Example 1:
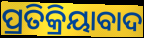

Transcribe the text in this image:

ପ୍ରତିକ୍ରିୟାବାଦ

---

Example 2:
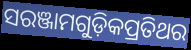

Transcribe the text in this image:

ସରଞ୍ଜାମଗୁଡ଼ିକପ୍ରତିଥର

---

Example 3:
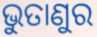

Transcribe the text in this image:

ଭୁତାଣୁର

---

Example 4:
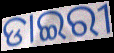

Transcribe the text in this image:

ଡାଇରୀ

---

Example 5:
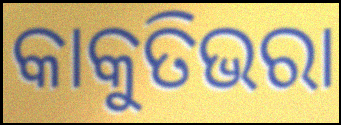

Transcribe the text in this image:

କାକୁତିଭରା